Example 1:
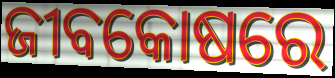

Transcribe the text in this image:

ଜୀବକୋଷରେ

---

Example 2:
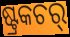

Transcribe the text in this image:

ଷ୍ଟ୍ରକଚର୍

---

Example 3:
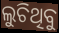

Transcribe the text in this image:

ଲୁଚିଥିବୁ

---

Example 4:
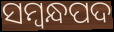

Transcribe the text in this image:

ସମ୍ବନ୍ଧପଦ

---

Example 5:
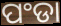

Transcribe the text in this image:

ପଂଡା